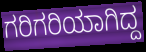
ಗರಿಗರಿಯಾಗಿದ್ದ